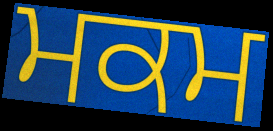
ਮਕਮ